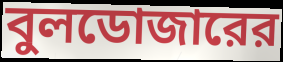
বুলডোজারের